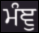
ਮੰਞੁ